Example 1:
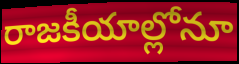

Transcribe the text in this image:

రాజకీయాల్లోనూ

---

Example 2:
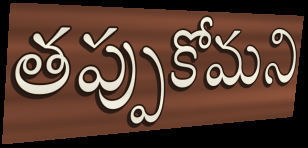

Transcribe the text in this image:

తప్పుకోమని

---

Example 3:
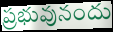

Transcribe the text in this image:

ప్రభువునందు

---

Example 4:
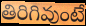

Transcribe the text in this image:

తిరిగివుంటే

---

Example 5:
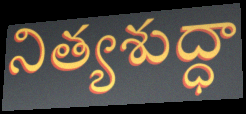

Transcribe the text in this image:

నిత్యశుద్ధా